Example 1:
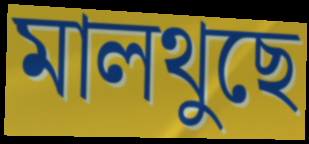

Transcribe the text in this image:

মালথুছে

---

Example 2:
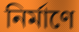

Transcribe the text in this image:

নিৰ্মাণে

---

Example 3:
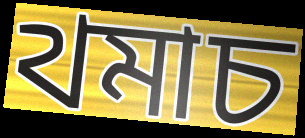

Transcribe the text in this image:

থমাচ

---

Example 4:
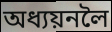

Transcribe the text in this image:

অধ্যয়নলৈ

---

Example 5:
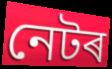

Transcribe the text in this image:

নেটৰ